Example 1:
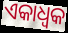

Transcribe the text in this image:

ଏକାଧ୍ଵକ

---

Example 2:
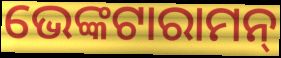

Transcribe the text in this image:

ଭେଙ୍କଟାରାମନ୍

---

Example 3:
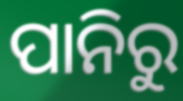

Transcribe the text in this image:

ପାନିରୁ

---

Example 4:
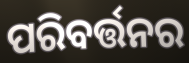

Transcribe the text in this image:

ପରିବର୍ତ୍ତନର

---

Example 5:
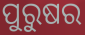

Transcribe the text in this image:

ପୁରୁଷର